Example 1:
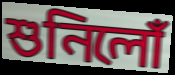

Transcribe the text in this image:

শুনিলোঁ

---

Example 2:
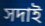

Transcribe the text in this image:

সদাই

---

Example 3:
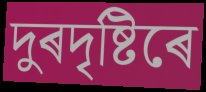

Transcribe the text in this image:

দুৰদৃষ্টিৰে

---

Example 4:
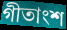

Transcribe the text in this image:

গীতাংশ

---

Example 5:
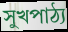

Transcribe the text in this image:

সুখপাঠ্য